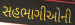
સહભાગીઓની